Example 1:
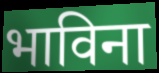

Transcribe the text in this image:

भाविना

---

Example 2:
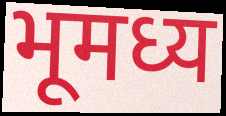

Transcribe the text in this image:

भूमध्य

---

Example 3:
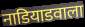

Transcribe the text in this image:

नाडियाडवाला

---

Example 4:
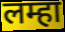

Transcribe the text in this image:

लम्हा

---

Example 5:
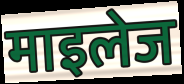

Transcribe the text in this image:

माइलेज